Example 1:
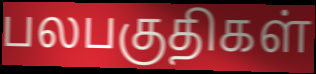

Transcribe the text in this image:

பலபகுதிகள்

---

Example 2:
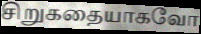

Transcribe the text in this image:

சிறுகதையாகவோ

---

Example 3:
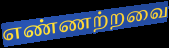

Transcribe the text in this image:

எண்ணற்றவை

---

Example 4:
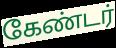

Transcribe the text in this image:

கேண்டர்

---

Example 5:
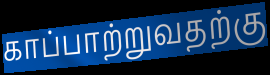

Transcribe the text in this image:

காப்பாற்றுவதற்கு